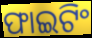
ଫାଇଟିଂ